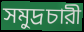
সমুদ্রচারী